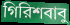
গিরিশবাবু